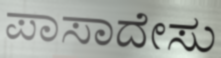
ಪಾಸಾದೇಸು